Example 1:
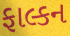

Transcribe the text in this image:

ફાલ્કન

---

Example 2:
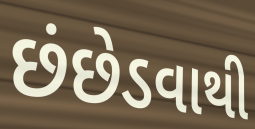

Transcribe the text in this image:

છંછેડવાથી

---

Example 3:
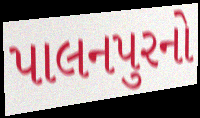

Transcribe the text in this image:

પાલનપુરનો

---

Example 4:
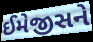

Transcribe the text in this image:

ઈમેજીસને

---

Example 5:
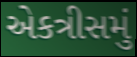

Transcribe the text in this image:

એકત્રીસમું